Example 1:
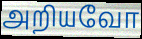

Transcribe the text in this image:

அறியவோ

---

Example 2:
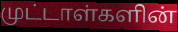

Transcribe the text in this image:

முட்டாள்களின்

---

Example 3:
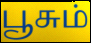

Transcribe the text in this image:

பூசும்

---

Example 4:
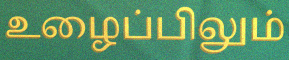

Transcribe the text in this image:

உழைப்பிலும்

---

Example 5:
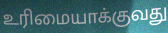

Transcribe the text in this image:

உரிமையாக்குவது